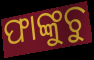
ଫାଙ୍କୁଚୁ